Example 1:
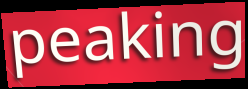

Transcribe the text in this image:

peaking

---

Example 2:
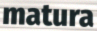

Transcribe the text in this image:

matura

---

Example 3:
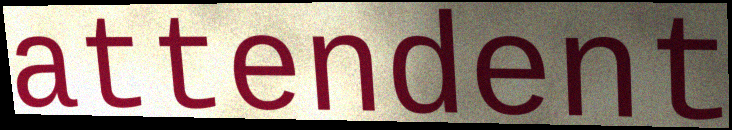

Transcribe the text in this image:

attendent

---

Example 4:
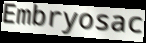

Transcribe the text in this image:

Embryosac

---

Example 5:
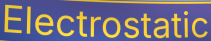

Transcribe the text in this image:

Electrostatic